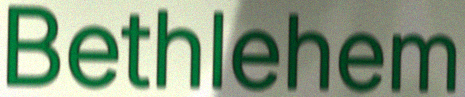
Bethlehem